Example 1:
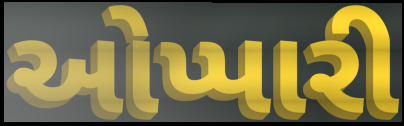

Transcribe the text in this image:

ઓપ્પારી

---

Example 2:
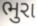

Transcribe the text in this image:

ભુરા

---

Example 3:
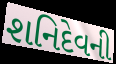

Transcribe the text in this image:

શનિદેવની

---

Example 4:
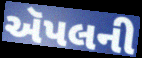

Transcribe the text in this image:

ઍપલની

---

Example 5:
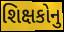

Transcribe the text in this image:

શિક્ષકોનુ